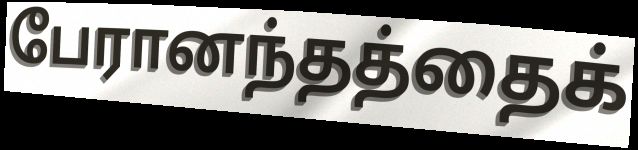
பேரானந்தத்தைக்